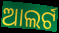
ଆଲର୍ଟ